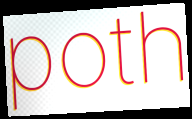
poth